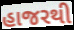
હાજરથી